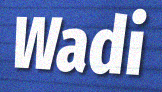
Wadi